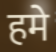
हमे